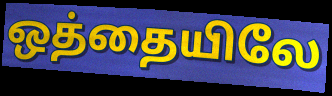
ஒத்தையிலே